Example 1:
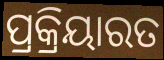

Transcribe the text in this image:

ପ୍ରକ୍ରିୟାରତ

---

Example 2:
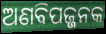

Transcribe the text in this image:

ଅଣବିପଜ୍ଜନକ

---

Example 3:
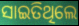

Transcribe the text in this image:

ସାଇତିଥିଲେ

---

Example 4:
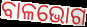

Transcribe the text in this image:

ବାଳଭୋଗ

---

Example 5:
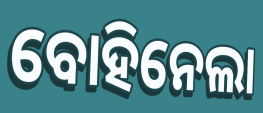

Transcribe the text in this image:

ବୋହିନେଲା